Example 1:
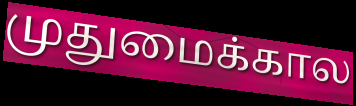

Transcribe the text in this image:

முதுமைக்கால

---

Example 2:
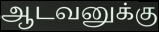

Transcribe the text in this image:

ஆடவனுக்கு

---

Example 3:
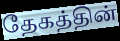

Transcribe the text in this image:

தேகத்தின்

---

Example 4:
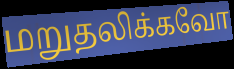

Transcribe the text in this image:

மறுதலிக்கவோ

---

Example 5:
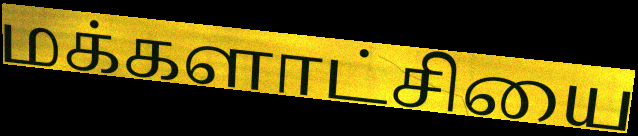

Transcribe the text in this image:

மக்களாட்சியை